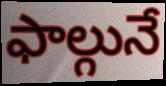
ఫాల్గునే